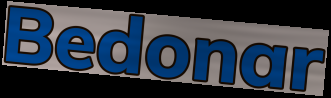
Bedonar